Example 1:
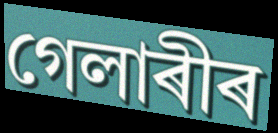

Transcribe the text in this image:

গেলাৰীৰ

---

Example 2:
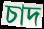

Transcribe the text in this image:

চাদ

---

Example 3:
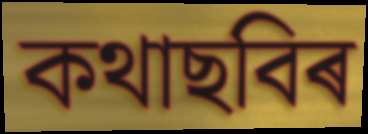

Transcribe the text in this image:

কথাছবিৰ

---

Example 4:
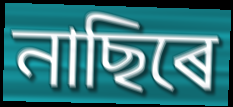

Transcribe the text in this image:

নাছিৰে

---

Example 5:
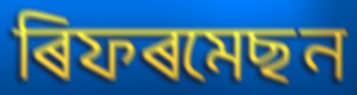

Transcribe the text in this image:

ৰিফৰমেছন